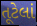
તૂટેલાં